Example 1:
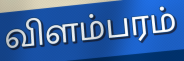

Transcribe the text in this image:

விளம்பரம்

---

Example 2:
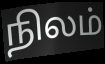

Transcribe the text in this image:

நிலம்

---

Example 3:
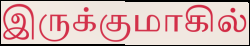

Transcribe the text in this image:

இருக்குமாகில்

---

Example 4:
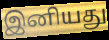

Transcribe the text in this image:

இனியது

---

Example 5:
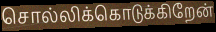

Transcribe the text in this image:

சொல்லிக்கொடுக்கிறேன்